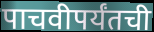
पाचवीपर्यंतची